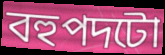
বহুপদটো